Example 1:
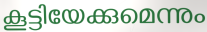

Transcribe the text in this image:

കൂട്ടിയേക്കുമെന്നും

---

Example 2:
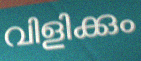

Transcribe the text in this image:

വിളിക്കും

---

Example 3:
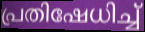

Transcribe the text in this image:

പ്രതിഷേധിച്ച്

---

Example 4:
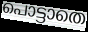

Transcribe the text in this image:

പൊട്ടാതെ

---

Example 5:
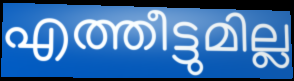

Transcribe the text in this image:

എത്തീട്ടുമില്ല